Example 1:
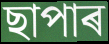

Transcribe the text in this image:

ছাপাৰ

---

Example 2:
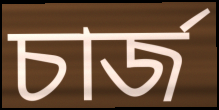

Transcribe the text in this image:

চাৰ্জ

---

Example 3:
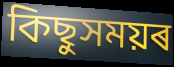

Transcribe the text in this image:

কিছুসময়ৰ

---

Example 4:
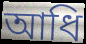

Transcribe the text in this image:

আধি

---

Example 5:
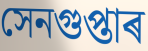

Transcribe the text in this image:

সেনগুপ্তাৰ